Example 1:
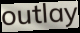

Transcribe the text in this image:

outlay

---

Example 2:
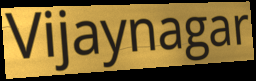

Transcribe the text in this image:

Vijaynagar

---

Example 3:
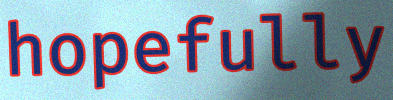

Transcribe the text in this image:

hopefully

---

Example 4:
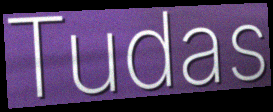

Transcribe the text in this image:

Tudas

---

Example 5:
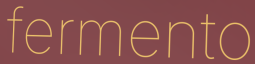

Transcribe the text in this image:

fermento